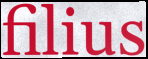
filius